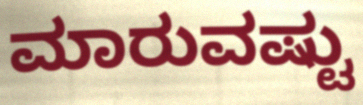
ಮಾರುವಷ್ಟು